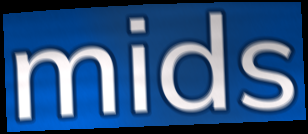
mids